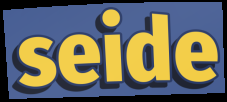
seide